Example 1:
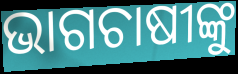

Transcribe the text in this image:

ଭାଗଚାଷୀଙ୍କୁ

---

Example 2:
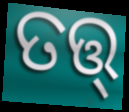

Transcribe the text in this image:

ତତ୍ତ୍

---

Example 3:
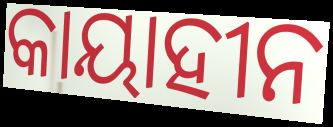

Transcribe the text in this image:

କାୟାହୀନ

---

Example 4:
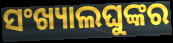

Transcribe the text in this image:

ସଂଖ୍ୟାଲଘୁଙ୍କର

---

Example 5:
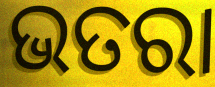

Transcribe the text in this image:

ଭତରା